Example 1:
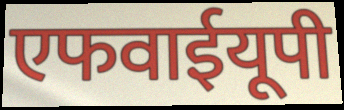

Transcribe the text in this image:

एफवाईयूपी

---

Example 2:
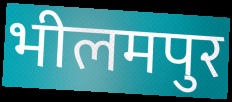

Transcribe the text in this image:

भीलमपुर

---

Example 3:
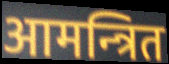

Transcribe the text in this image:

आमन्त्रित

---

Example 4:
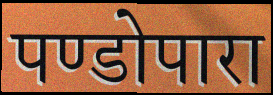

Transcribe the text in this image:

पण्डोपारा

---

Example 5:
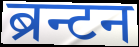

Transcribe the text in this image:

ब्रन्टन